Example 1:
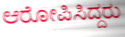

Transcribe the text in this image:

ಆರೋಪಿಸಿದ್ದರು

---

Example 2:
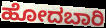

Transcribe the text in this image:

ಹೋದಬಾರಿ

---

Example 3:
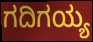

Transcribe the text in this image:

ಗದಿಗಯ್ಯ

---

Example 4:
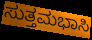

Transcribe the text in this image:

ಸುತ್ತಮಭಾಸಿ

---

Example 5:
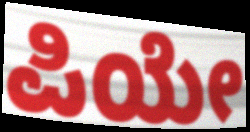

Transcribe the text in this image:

ಪಿಯೇ